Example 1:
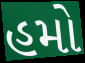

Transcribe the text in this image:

હમો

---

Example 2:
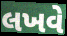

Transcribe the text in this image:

લખવે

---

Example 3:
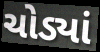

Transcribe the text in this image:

ચોડ્યાં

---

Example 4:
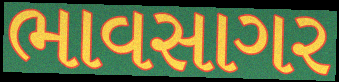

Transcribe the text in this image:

ભાવસાગર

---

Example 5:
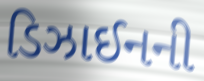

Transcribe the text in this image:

ડિઝાઈનની